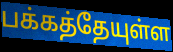
பக்கத்தேயுள்ள